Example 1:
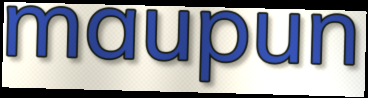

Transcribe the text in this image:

maupun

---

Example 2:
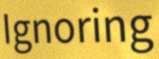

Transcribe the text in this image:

Ignoring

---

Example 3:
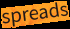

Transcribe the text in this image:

spreads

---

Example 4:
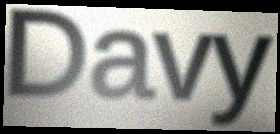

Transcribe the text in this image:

Davy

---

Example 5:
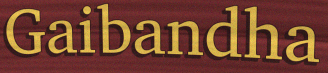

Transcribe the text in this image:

Gaibandha